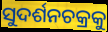
ସୁଦର୍ଶନଚକ୍ରକୁ